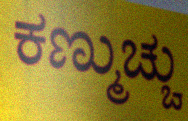
ಕಣ್ಮುಚ್ಚು